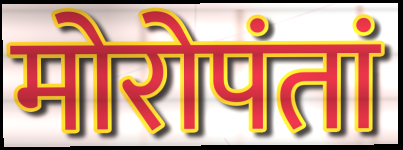
मोरोपंतां